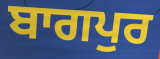
ਬਾਗਪੁਰ